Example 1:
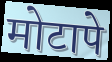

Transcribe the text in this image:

मोटापे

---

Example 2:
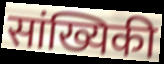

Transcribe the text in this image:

सांख्यिकी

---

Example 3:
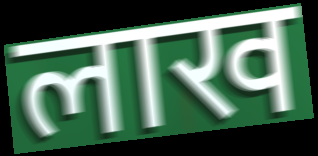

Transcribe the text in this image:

लाख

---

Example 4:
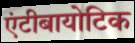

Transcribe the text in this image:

एंटीबायोटिक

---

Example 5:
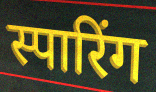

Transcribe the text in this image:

स्पारिंग